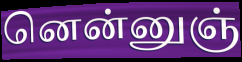
னென்னுஞ்